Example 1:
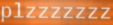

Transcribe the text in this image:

plzzzzzzz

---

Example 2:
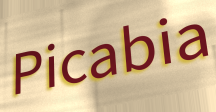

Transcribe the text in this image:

Picabia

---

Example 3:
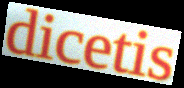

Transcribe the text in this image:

dicetis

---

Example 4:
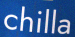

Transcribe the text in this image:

chilla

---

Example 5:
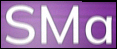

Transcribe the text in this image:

SMa